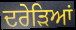
ਦਰੇੜਿਆਂ